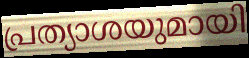
പ്രത്യാശയുമായി